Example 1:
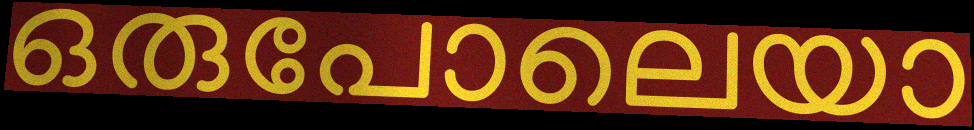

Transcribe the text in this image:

ഒരുപോലെയാ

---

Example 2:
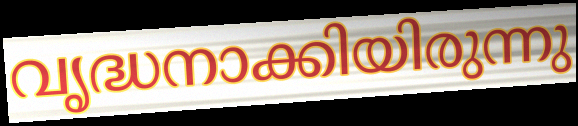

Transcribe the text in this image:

വൃദ്ധനാക്കിയിരുന്നു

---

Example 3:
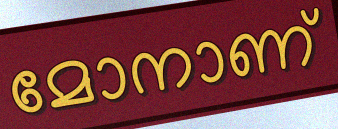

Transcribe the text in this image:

മോനാണ്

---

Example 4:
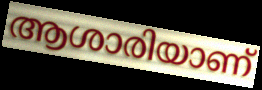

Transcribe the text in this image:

ആശാരിയാണ്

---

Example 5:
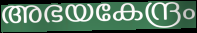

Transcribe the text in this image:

അഭയകേന്ദ്രം